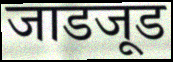
जाडजूड